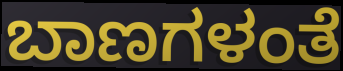
ಬಾಣಗಳಂತೆ